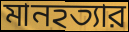
মানহত্যার